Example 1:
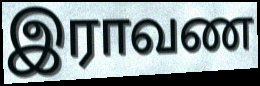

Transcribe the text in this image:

இராவண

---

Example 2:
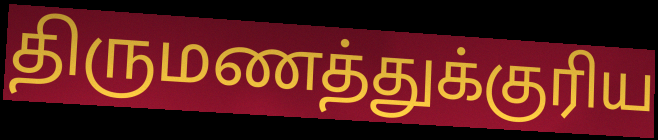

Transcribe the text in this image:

திருமணத்துக்குரிய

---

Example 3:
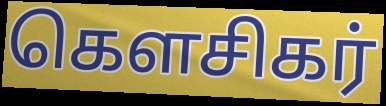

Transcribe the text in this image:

கௌசிகர்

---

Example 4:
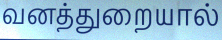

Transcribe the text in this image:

வனத்துறையால்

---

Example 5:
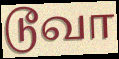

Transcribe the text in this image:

டூவா